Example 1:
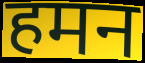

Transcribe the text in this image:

हमन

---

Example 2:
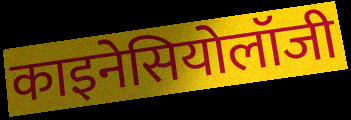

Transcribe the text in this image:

काइनेसियोलॉजी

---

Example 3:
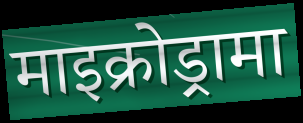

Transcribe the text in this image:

माइक्रोड्रामा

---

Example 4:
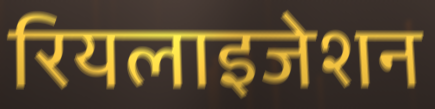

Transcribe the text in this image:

रियलाइजेशन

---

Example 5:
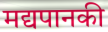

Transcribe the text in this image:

मद्यपानकी